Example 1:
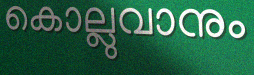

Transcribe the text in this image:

കൊല്ലുവാനും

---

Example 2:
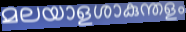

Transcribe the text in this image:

മലയാളശാകുന്തളം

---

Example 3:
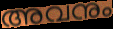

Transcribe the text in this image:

അവനും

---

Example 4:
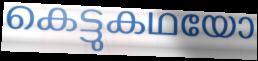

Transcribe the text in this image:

കെട്ടുകഥയോ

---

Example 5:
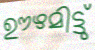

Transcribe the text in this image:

ഊഴമിട്ടു്